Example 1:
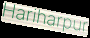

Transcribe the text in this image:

Hariharpur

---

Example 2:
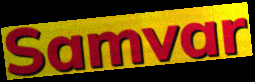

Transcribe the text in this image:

Samvar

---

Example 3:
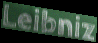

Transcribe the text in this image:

Leibniz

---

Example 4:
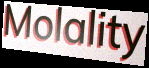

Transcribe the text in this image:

Molality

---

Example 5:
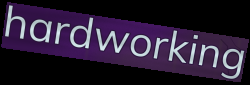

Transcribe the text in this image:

hardworking